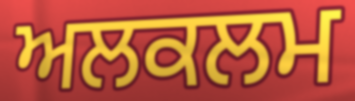
ਅਲਕਲਮ